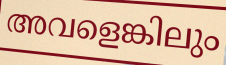
അവളെങ്കിലും